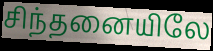
சிந்தனையிலே